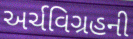
અર્ચવિગ્રહની